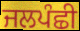
ਜਲਪੰਛੀ